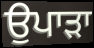
ਉਪਾੜਾ